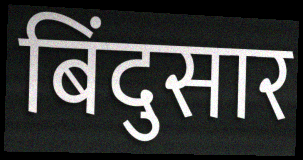
बिंदुसार